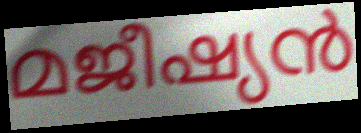
മജീഷ്യൻ